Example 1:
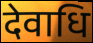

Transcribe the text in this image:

देवाधि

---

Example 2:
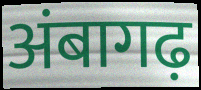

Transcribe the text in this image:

अंबागढ़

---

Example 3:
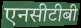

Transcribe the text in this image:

एनसीटीबी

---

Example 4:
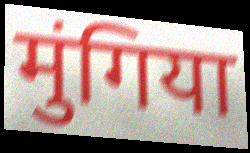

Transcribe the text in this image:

मुंगिया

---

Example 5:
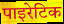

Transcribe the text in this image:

पाइरेटिक